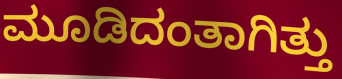
ಮೂಡಿದಂತಾಗಿತ್ತು